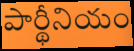
పార్థీనియం